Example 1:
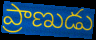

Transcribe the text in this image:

ప్రాణుడు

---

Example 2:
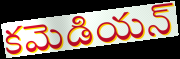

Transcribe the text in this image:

కమెడియన్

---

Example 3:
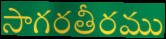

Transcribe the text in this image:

సాగరతీరము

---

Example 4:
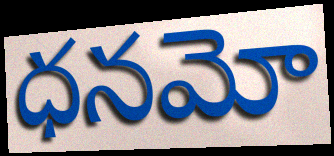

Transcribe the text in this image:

ధనమో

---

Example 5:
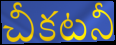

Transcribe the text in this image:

చీకటనీ